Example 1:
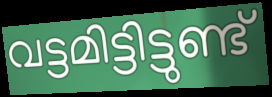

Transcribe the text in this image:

വട്ടമിട്ടിട്ടുണ്ട്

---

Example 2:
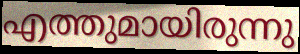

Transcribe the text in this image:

എത്തുമായിരുന്നു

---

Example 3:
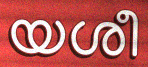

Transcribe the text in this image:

യശീ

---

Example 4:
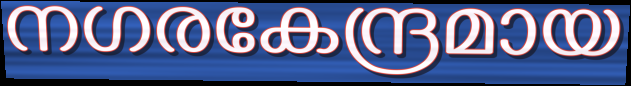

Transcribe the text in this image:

നഗരകേന്ദ്രമായ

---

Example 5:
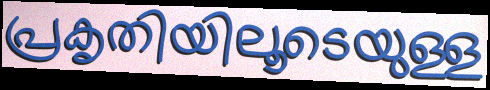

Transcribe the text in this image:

പ്രകൃതിയിലൂടെയുള്ള